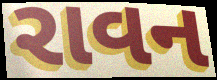
રાવન